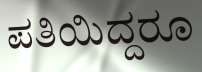
ಪತಿಯಿದ್ದರೂ